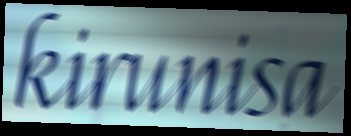
kirunisa